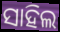
ସାହିଲ